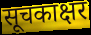
सूचकाक्षर